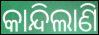
କାନ୍ଦିଲାଣି